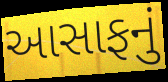
આસાફનું